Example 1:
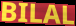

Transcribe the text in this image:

BILAL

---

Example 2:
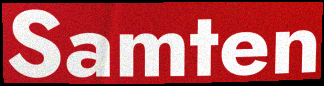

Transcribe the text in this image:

Samten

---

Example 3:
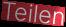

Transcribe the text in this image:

Teilen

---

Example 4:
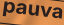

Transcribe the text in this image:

pauva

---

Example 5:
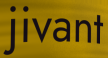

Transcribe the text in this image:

jivant